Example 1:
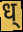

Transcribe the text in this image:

ध्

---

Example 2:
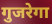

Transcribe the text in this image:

गुजरेगा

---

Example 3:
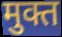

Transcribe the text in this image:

मुक्त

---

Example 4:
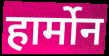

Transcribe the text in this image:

हार्मोन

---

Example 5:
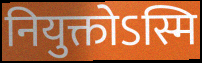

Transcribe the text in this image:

नियुक्तोऽस्मि